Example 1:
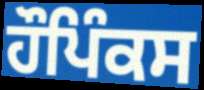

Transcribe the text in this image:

ਹੌਪਿੰਕਸ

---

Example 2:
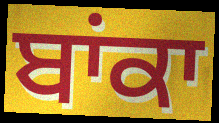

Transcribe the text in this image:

ਬਾਂਕਾ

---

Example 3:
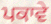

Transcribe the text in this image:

ਪਕਾਵੇ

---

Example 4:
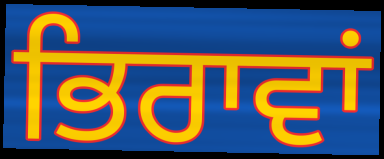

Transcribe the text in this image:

ਭਿਰਾਵਾਂ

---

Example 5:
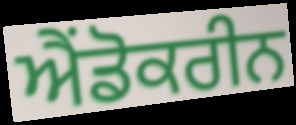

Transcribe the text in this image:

ਐਂਡੋਕਰੀਨ